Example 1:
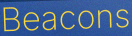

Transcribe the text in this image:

Beacons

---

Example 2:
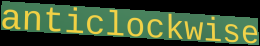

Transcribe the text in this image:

anticlockwise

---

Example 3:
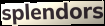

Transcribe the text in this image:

splendors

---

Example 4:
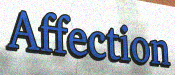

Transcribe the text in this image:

Affection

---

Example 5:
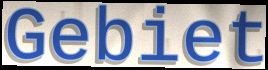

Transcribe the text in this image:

Gebiet